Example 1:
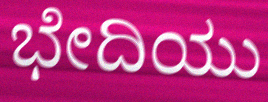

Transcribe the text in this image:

ಭೇದಿಯು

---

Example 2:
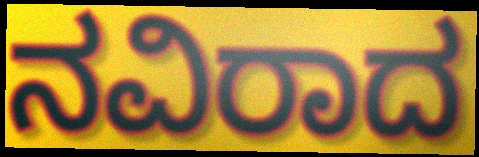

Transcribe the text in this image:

ನವಿರಾದ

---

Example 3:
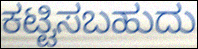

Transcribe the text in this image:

ಕಟ್ಟಿಸಬಹುದು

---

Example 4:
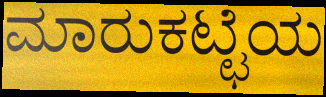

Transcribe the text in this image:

ಮಾರುಕಟ್ಟೆಯ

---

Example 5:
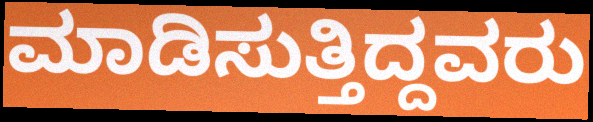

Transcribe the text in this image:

ಮಾಡಿಸುತ್ತಿದ್ದವರು